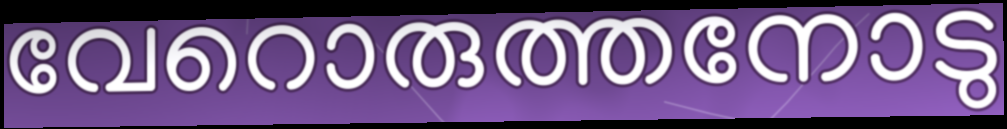
വേറൊരുത്തനോടു